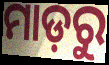
ମାଡ଼ରୁ